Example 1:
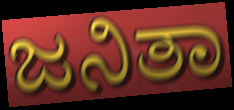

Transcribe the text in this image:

ಜನಿತಾ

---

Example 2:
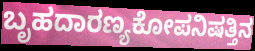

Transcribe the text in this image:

ಬೃಹದಾರಣ್ಯಕೋಪನಿಷತ್ತಿನ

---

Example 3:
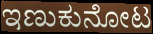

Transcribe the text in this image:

ಇಣುಕುನೋಟ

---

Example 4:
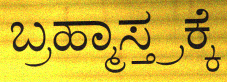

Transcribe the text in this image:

ಬ್ರಹ್ಮಾಸ್ತ್ರಕ್ಕೆ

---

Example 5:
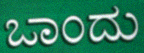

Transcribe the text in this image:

ಒಾಂದು